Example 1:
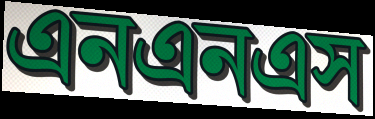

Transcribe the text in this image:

এনএনএস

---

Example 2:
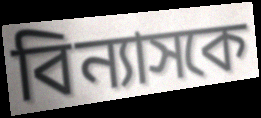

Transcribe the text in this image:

বিন্যাসকে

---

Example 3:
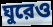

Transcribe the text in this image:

ঘুরেও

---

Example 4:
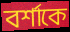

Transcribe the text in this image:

বর্শাকে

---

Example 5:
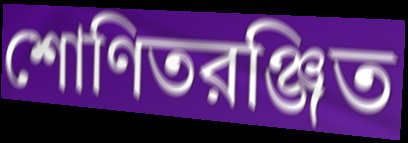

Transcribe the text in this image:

শোণিতরঞ্জিত